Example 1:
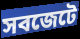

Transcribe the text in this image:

সবজেটে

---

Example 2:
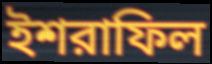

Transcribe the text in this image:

ইশরাফিল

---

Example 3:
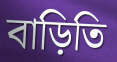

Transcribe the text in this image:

বাড়িতি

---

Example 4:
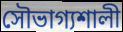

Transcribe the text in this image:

সৌভাগ্যশালী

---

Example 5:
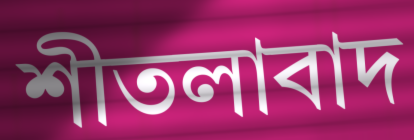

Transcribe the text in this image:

শীতলাবাদ